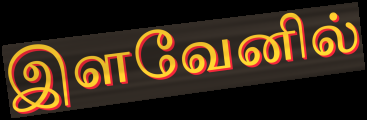
இளவேனில்